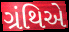
ગ્રંથિએ